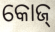
କୋଜ୍